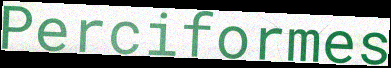
Perciformes